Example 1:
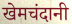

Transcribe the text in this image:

खेमचंदानी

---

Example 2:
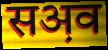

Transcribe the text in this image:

सअ़व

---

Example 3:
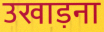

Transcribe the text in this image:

उखाड़ना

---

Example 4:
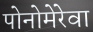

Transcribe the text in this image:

पोनोमेरेवा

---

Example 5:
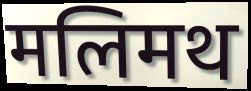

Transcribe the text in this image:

मलिमथ